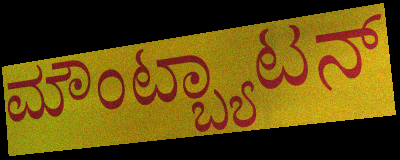
ಮೌಂಟ್ಬ್ಯಾಟನ್